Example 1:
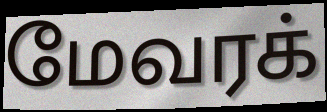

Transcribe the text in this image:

மேவரக்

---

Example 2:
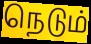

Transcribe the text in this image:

நெடும்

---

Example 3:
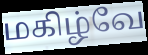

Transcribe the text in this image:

மகிழ்வே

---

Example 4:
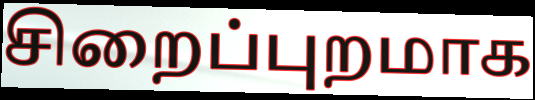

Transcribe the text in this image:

சிறைப்புறமாக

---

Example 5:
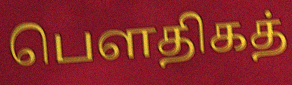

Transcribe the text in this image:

பௌதிகத்